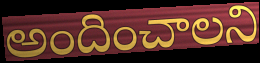
అందించాలని